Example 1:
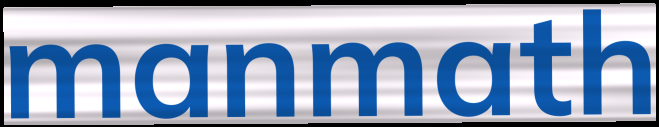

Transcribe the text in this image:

manmath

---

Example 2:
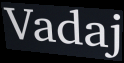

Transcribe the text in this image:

Vadaj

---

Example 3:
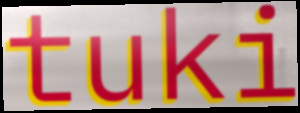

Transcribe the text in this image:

tuki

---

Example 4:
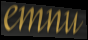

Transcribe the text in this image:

emnu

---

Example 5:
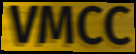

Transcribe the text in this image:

VMCC